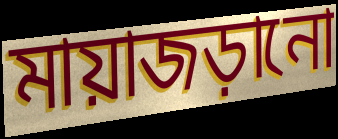
মায়াজড়ানো